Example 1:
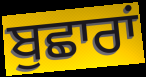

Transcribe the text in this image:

ਬੁਛਾਰਾਂ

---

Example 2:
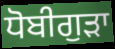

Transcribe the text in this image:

ਧੋਬੀਗੁੜਾ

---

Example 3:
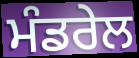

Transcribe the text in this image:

ਮੰਡਰੇਲ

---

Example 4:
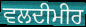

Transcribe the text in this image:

ਵਲਦੀਮੀਰ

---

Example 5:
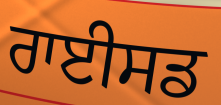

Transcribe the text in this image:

ਰਾਈਸਡ